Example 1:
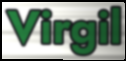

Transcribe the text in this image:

Virgil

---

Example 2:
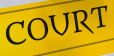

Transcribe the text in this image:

COURT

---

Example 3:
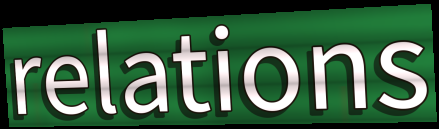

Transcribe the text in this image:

relations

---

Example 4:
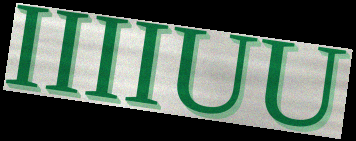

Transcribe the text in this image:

IIIIUU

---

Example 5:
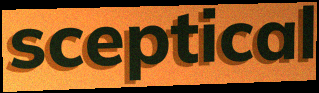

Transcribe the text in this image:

sceptical